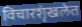
विचारशृंखलेत